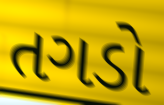
તગડો